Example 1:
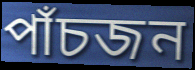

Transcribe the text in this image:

পাঁচজন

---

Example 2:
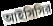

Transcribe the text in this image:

আইসিসির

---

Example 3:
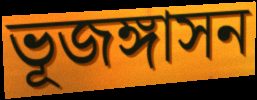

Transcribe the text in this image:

ভূজঙ্গাসন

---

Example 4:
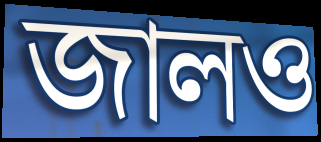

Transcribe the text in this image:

জালও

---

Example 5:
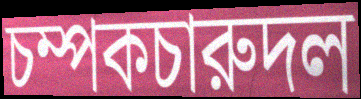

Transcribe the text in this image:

চম্পকচারুদল